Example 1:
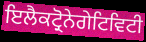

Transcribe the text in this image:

ਇਲੈਕਟ੍ਰੋਨੇਗੇਟਿਵਿਟੀ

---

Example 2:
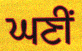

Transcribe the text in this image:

ਘਣੀਂ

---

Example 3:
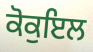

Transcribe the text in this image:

ਕੋਕੁਇਲ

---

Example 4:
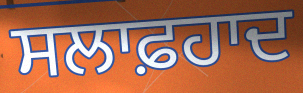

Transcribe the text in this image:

ਸਲਾਫ਼ਹਾਦ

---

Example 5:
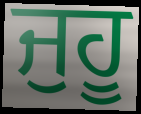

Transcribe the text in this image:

ਜੁਹੂ